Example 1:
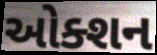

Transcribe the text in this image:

ઓક્શન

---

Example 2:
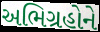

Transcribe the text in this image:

અભિગ્રહોને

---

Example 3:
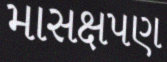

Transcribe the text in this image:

માસક્ષપણ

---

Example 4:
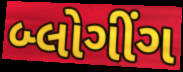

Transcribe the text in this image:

બ્લોગીંગ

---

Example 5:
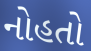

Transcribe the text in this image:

નોહતો